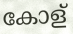
കോള്